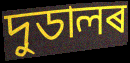
দুডালৰ